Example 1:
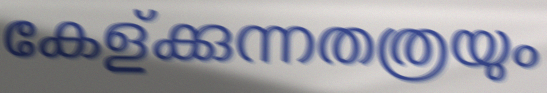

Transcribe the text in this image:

കേള്ക്കുന്നതത്രയും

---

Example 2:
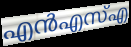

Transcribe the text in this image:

എൻഎസ്എ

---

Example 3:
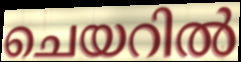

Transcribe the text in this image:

ചെയറിൽ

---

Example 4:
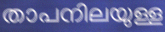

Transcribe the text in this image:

താപനിലയുള്ള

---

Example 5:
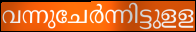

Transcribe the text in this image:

വന്നുചേർന്നിട്ടുളള